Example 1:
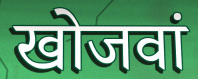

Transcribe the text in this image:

खोजवां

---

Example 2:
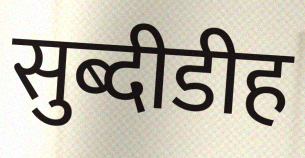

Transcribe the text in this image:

सुब्दीडीह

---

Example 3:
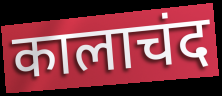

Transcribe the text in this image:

कालाचंद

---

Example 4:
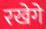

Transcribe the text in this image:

रखेगे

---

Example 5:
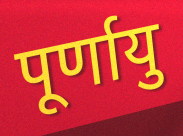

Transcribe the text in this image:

पूर्णायु